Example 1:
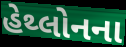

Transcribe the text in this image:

હેથ્લોનના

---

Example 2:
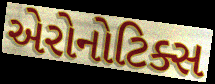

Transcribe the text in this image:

એરોનોટિક્સ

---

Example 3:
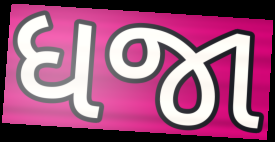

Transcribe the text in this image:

ધજા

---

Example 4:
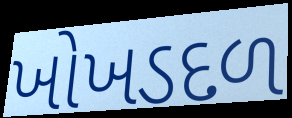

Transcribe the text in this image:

ખોખડદળ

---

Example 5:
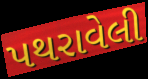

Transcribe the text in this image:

પથરાવેલી